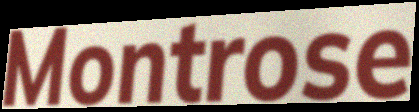
Montrose